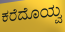
ಕರೆದೊಯ್ವ